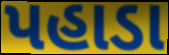
પહાડા